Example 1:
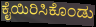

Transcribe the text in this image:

ಕೈಯಿರಿಸಿಕೊಂಡು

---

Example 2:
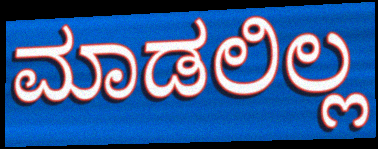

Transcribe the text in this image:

ಮಾಡಲಿಲ್ಲ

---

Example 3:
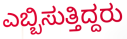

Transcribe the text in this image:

ಎಬ್ಬಿಸುತ್ತಿದ್ದರು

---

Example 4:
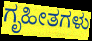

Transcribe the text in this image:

ಗೃಹೀತಗಳು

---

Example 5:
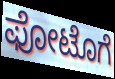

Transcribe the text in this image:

ಫೋಟೊಗೆ